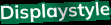
Displaystyle